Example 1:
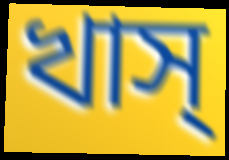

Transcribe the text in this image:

খাস্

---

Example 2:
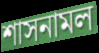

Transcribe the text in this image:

শাসনামল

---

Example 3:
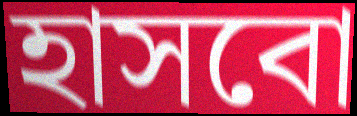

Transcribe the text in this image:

হাসবো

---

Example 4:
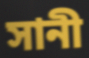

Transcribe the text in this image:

সানী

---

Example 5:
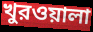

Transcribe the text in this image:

খুরওয়ালা